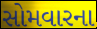
સોમવારના